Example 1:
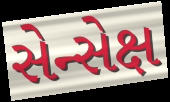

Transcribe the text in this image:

સેન્સેક્ષ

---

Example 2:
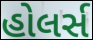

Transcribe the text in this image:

હોલર્સ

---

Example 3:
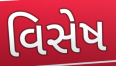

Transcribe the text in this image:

વિસેષ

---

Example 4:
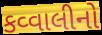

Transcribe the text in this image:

કવ્વાલીનો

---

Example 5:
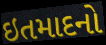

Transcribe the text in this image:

ઇતમાદનો